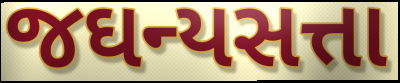
જઘન્યસત્તા